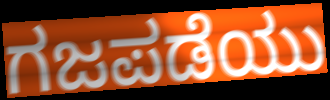
ಗಜಪಡೆಯು